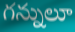
గన్నులూ